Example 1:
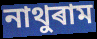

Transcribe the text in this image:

নাথুৰাম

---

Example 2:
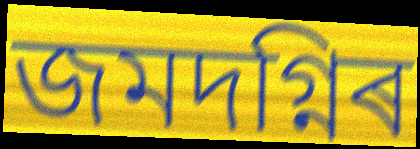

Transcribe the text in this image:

জমদগ্নিৰ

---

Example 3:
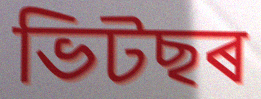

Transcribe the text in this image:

ভিটছৰ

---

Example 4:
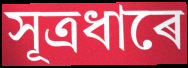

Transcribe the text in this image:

সূত্ৰধাৰে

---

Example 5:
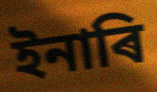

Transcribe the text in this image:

ইনাৰি